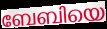
ബേബിയെ